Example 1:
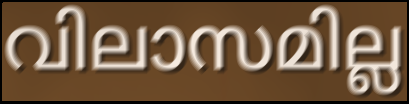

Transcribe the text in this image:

വിലാസമില്ല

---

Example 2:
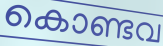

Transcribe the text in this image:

കൊണ്ടവ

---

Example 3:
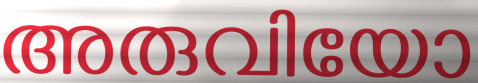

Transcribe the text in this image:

അരുവിയോ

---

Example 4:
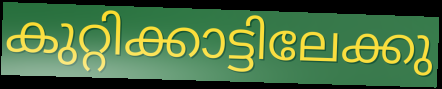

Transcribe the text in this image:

കുറ്റിക്കാട്ടിലേക്കു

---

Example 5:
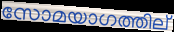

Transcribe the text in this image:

സോമയാഗത്തില്